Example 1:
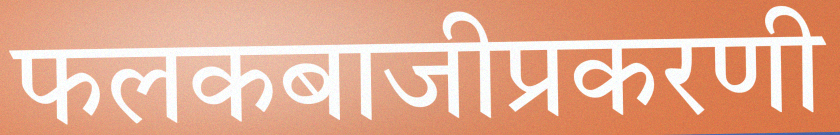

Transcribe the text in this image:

फलकबाजीप्रकरणी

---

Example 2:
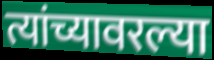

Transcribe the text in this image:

त्यांच्यावरल्या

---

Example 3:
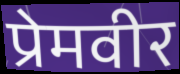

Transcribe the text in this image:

प्रेमवीर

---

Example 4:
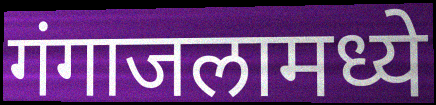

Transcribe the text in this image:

गंगाजलामध्ये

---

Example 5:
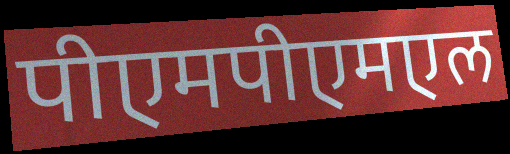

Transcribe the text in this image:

पीएमपीएमएल